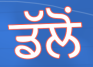
ਡੱਲੋਂ